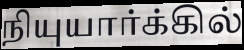
நியுயார்க்கில்